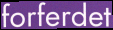
forferdet